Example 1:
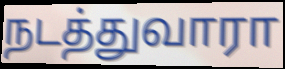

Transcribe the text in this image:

நடத்துவாரா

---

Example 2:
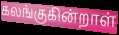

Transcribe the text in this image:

கலங்குகின்றாள்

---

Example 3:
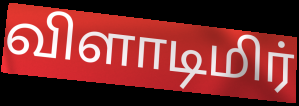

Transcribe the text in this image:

விளாடிமிர்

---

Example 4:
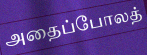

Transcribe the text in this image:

அதைப்போலத்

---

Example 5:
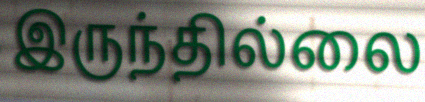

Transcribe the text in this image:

இருந்தில்லை